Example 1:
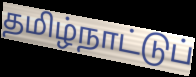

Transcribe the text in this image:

தமிழ்நாட்டுப்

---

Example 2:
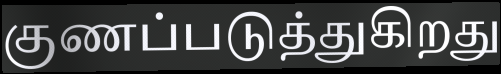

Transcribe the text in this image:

குணப்படுத்துகிறது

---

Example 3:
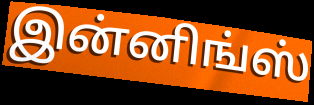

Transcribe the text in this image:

இன்னிங்ஸ்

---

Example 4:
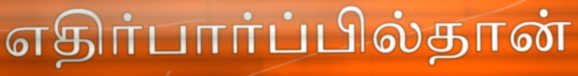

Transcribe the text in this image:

எதிர்பார்ப்பில்தான்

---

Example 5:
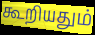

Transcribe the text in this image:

கூறியதும்